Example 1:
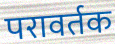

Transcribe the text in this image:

परावर्तक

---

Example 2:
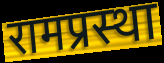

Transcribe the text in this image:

रामप्रस्था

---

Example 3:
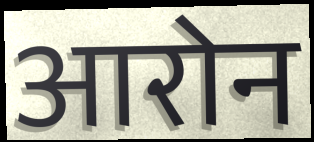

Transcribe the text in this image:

आरोन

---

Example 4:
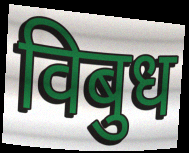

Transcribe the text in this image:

विबुध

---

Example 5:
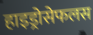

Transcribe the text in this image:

हाइड्रोसेफलस